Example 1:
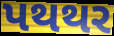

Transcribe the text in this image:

પથથર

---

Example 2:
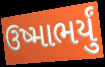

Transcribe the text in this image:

ઉષ્માભર્યું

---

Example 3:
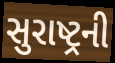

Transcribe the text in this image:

સુરાષ્ટ્રની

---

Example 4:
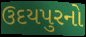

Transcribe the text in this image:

ઉદયપુરનો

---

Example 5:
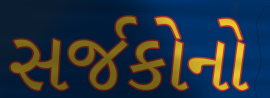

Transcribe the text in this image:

સર્જકોનો